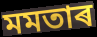
মমতাৰ